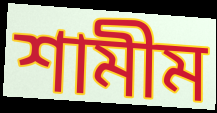
শামীম